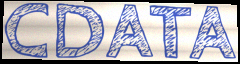
CDATA